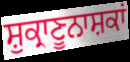
ਸ਼ੁਕ੍ਰਾਣੂਨਾਸ਼ਕਾਂ